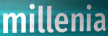
millenia